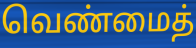
வெண்மைத்